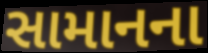
સામાનના